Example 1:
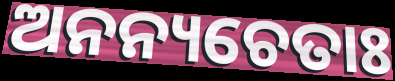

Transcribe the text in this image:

ଅନନ୍ୟଚେତାଃ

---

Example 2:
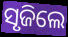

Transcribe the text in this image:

ସୃଜିଲେ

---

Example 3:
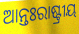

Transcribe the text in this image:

ଆନ୍ତଃରାଷ୍ଟ୍ରୀୟ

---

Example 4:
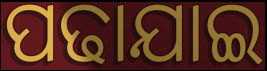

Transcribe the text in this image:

ପଢାଯାଇ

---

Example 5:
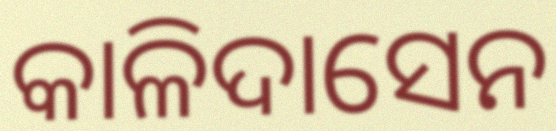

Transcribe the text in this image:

କାଳିଦାସେନ